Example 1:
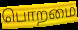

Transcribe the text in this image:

பொறமை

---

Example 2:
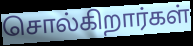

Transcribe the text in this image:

சொல்கிறார்கள்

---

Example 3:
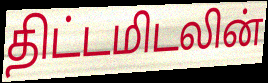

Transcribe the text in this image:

திட்டமிடலின்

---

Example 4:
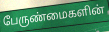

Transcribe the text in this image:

பேருண்மைகளின்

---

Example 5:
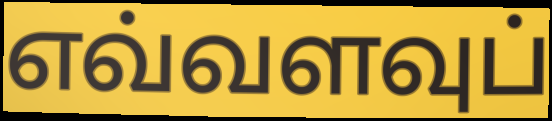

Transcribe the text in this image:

எவ்வளவுப்